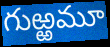
గుఱ్ఱమూ